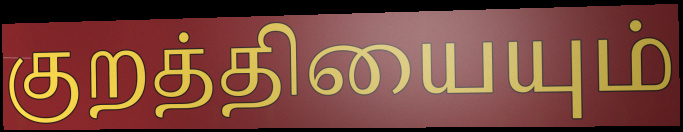
குறத்தியையும்